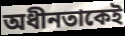
অধীনতাকেই